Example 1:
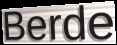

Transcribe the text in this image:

Berde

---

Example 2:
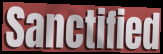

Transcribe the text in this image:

Sanctified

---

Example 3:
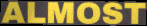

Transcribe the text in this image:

ALMOST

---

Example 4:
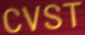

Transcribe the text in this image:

CVST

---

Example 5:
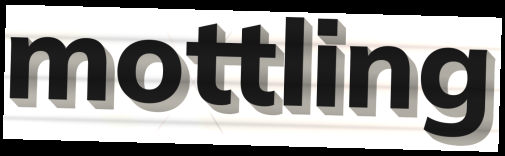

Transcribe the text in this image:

mottling